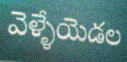
వెళ్ళేయెడల